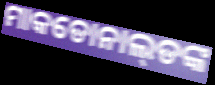
ମାକଡୋନାଲ୍‍ଡଙ୍କ